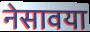
नेसावया